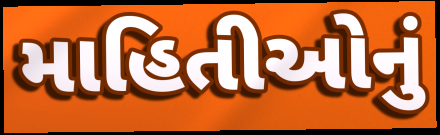
માહિતીઓનું